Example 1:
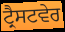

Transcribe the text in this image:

ਟ੍ਰੈਸਟਵੇਰ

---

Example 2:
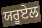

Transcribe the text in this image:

ਯਰੂਏਲ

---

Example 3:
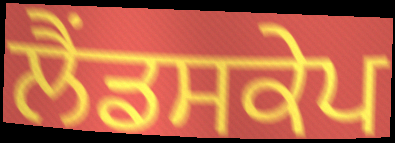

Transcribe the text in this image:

ਲੈਂਡਸਕੇਪ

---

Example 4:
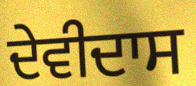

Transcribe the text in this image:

ਦੇਵੀਦਾਸ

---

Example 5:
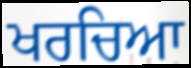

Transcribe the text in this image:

ਖਰਚਿਆ